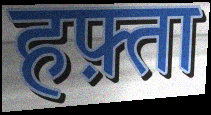
हफ़्ता